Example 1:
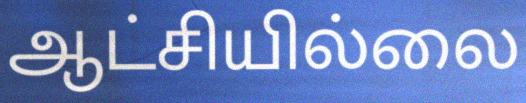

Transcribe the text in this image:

ஆட்சியில்லை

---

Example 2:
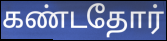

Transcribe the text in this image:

கண்டதோர்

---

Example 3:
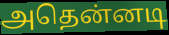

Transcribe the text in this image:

அதென்னடி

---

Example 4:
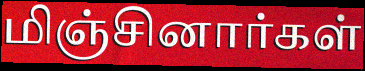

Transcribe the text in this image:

மிஞ்சினார்கள்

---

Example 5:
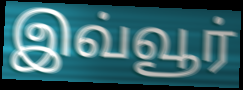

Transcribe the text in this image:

இவ்வூர்